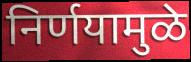
निर्णयामुळे